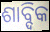
ଶାବ୍ଦିକ